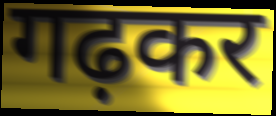
गढ़कर